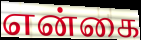
என்கை